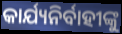
କାର୍ଯ୍ୟନିର୍ବାହୀଙ୍କୁ